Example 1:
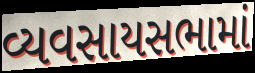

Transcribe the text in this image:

વ્યવસાયસભામાં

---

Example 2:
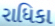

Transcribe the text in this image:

રાધિકા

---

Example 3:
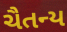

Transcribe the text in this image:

ચૈતન્ય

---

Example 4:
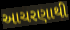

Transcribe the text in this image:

આચરણાથી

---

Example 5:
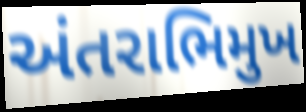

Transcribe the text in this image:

અંતરાભિમુખ